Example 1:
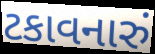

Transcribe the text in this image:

ટકાવનારું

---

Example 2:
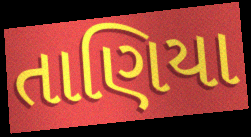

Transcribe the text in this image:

તાણિયા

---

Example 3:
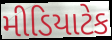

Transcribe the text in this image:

મીડિયાટેક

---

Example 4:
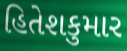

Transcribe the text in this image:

હિતેશકુમાર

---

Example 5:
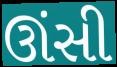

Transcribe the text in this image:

ઊંસી